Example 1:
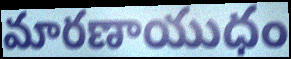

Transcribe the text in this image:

మారణాయుధం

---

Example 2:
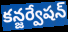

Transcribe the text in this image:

కన్జర్వేషన్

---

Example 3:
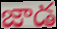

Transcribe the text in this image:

జాడ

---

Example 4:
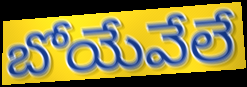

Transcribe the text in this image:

బోయేవేలే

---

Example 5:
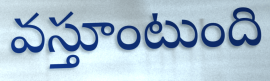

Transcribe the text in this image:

వస్తూంటుంది